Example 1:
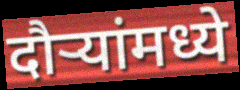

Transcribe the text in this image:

दौऱ्यांमध्ये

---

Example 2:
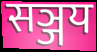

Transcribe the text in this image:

सञ्जय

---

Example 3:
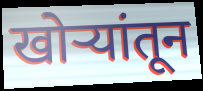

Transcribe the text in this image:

खोऱ्यांतून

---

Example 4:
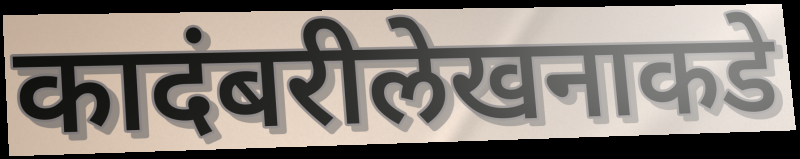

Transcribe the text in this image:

कादंबरीलेखनाकडे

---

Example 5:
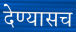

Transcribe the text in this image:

देण्यासच